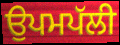
ਉਪਮਪੱਲੀ